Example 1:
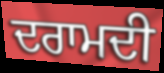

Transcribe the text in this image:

ਦਰਾਮਦੀ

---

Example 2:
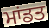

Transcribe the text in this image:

ਮਾਂਡਤ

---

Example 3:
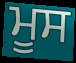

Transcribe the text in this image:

ਮੂਸ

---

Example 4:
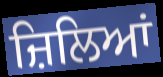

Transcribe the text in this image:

ਜ਼ਿਲਿਆਂ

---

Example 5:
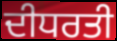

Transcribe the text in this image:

ਦੀਧਰਤੀ